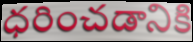
ధరించడానికి